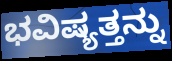
ಭವಿಷ್ಯತ್ತನ್ನು